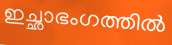
ഇച്ഛാഭംഗത്തിൽ